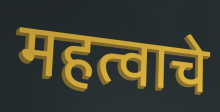
महत्वाचे